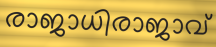
രാജാധിരാജാവ്